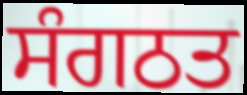
ਸੰਗਠਤ